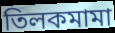
তিলকমামা